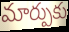
మార్పుకు